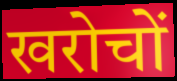
खरोचों